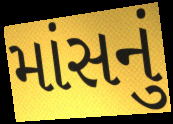
માંસનું